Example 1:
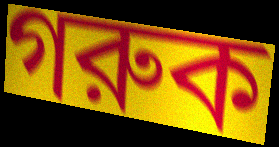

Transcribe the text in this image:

গরুক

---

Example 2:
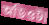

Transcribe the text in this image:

অডিওটা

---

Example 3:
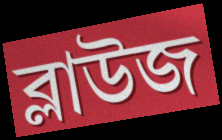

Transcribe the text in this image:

ব্লাউজ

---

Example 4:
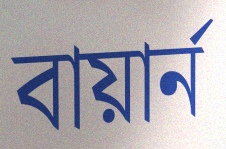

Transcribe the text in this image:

বায়ার্ন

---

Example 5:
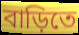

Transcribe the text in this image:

বাড়িতে